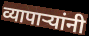
व्यापाऱ्यांनी